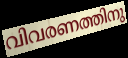
വിവരണത്തിനു